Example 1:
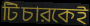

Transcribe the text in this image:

টিচারকেই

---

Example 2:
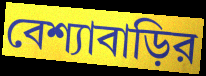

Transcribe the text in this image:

বেশ্যাবাড়ির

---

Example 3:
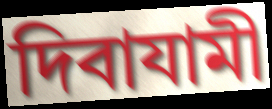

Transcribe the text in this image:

দিবাযামী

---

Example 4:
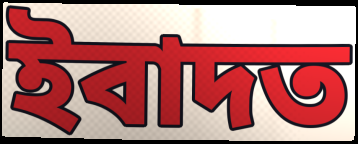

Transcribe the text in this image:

ইবাদত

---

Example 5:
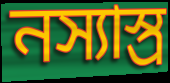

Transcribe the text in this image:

নস্যাস্ত্র